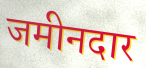
जमीनदार